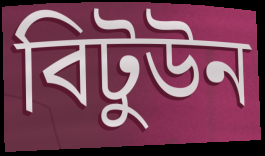
বিটুউন